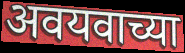
अवयवाच्या